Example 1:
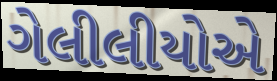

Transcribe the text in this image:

ગેલીલીયોએ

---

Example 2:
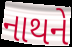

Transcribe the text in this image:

નાથને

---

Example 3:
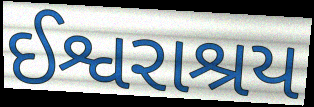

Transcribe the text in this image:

ઈશ્વરાશ્રય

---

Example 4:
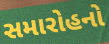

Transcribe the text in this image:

સમારોહનો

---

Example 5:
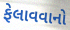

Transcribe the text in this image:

ફેલાવવાનો